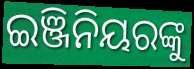
ଇଞ୍ଜିନିୟରଙ୍କୁ